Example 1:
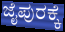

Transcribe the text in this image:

ಜೈಪುರಕ್ಕೆ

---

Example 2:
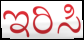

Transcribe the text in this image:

ಇರಿಸಿ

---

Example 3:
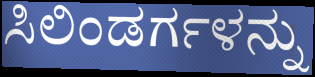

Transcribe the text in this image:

ಸಿಲಿಂಡರ್ಗಳನ್ನು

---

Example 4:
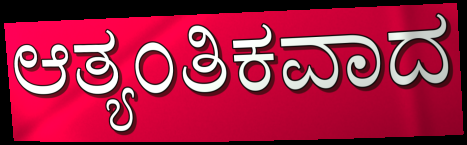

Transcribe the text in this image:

ಆತ್ಯಂತಿಕವಾದ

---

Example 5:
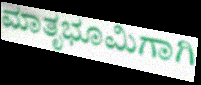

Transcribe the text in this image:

ಮಾತೃಭೂಮಿಗಾಗಿ